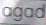
agad